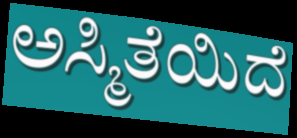
ಅಸ್ಮಿತೆಯಿದೆ